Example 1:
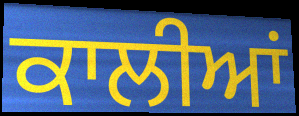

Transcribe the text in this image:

ਕਾਲੀਆਂ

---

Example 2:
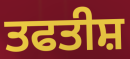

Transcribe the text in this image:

ਤਫਤੀਸ਼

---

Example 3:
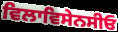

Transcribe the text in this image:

ਵਿਲਾਵਿਸੇਨਸੀਓ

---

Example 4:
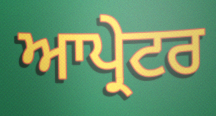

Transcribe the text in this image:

ਆਪ੍ਰੇਟਰ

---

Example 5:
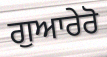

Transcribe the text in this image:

ਗੁਆਰੇਰੋ